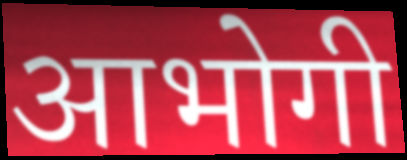
आभोगी